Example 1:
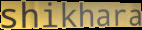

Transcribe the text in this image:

shikhara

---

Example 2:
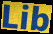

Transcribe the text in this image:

Lib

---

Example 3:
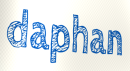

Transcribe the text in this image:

daphan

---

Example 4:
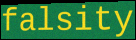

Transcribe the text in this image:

falsity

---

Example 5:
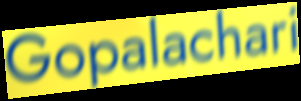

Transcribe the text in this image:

Gopalachari